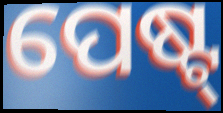
ପେଷ୍ଟ୍